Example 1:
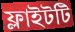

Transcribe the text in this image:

ফ্লাইটটি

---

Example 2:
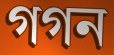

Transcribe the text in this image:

গগন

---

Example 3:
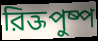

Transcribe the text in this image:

রিক্তপুষ্প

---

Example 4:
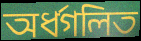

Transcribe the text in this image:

অর্ধগলিত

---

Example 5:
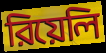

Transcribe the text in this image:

রিয়েলি